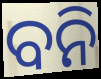
ବନି